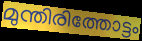
മുന്തിരിത്തോട്ടം